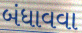
બંધાવવા